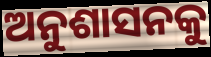
ଅନୁଶାସନକୁ